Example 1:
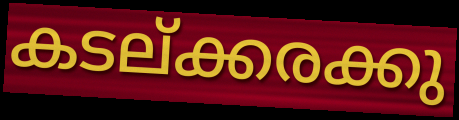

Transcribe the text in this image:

കടല്ക്കരക്കു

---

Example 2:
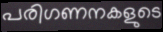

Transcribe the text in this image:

പരിഗണനകളുടെ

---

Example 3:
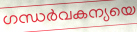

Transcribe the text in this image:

ഗന്ധർവകന്യയെ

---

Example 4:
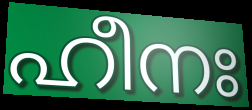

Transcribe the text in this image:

ഹീനഃ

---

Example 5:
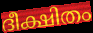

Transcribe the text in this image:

ദീക്ഷിതം